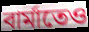
বার্মাতেও